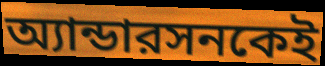
অ্যান্ডারসনকেই